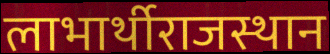
लाभार्थीराजस्थान